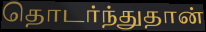
தொடர்ந்துதான்